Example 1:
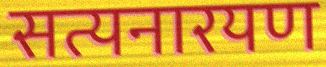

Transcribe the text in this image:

सत्यनारयण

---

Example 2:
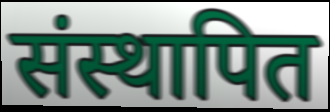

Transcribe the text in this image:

संस्थापित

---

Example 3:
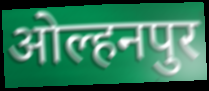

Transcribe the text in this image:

ओल्हनपुर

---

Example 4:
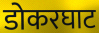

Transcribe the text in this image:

डोकरघाट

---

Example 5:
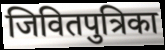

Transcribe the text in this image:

जिवितपुत्रिका